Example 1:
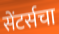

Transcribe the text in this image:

सेंटर्सचा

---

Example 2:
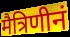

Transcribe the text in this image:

मैत्रिणीनं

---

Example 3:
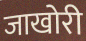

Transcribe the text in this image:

जाखोरी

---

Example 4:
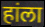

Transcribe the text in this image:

हांला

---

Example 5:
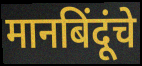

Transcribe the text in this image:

मानबिंदूंचे